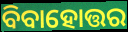
ବିବାହୋତ୍ତର